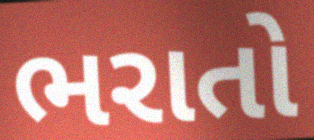
ભરાતો